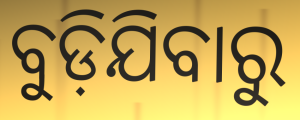
ବୁଡ଼ିଯିବାରୁ